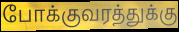
போக்குவரத்துக்கு